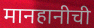
मानहानीची